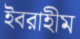
ইবরাহীম